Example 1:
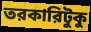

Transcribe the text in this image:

তরকারিটুকু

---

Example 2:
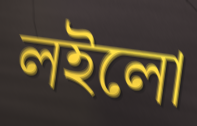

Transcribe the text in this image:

লইলো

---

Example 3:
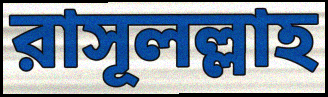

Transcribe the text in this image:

রাসূলল্লাহ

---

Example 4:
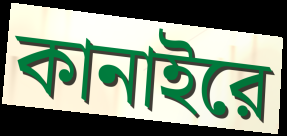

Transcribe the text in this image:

কানাইরে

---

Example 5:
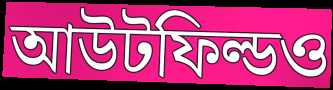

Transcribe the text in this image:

আউটফিল্ডও